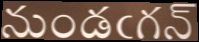
నుండఁగన్